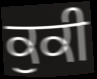
ਕੁਕੀ